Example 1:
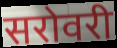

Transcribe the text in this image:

सरोवरी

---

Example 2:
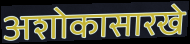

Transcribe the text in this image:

अशोकासारखे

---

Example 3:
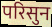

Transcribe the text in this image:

परिसुन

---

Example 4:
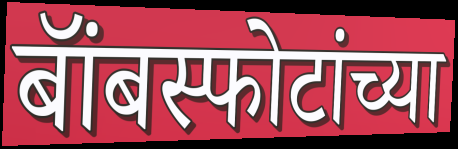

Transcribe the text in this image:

बॉंबस्फोटांच्या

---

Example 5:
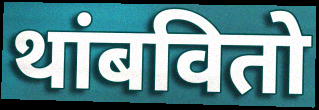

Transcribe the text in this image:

थांबवितो